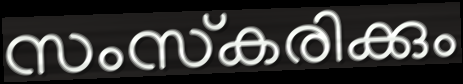
സംസ്‌കരിക്കും